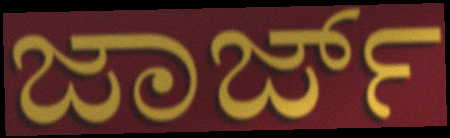
ಜಾರ್ಜ್